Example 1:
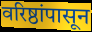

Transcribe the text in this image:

वरिष्ठांपासून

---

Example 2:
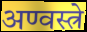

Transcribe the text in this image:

अण्वस्त्रे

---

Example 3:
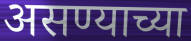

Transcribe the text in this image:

असण्याच्या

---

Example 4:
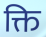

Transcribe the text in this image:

क्ति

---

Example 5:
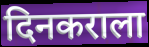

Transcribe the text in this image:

दिनकराला